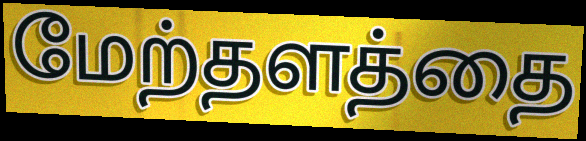
மேற்தளத்தை